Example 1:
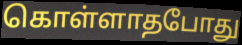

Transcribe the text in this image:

கொள்ளாதபோது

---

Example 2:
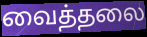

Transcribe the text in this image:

வைத்தலை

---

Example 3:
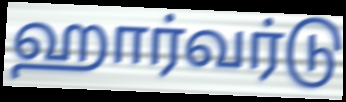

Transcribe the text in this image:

ஹார்வர்டு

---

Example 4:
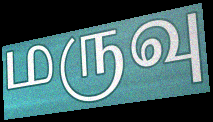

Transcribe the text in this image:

மருவு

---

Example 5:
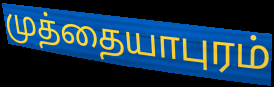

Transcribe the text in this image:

முத்தையாபுரம்